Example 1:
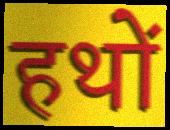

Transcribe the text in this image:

हथों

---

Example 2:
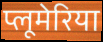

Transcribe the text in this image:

प्लूमेरिया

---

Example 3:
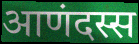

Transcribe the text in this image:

आणंदस्स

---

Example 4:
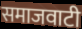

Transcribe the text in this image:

समाजवाटी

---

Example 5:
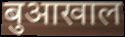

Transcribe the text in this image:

बुआखाल